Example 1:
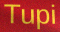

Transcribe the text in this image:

Tupi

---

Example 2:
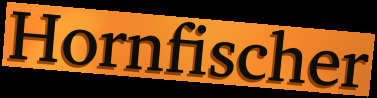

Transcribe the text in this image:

Hornfischer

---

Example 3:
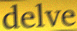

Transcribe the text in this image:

delve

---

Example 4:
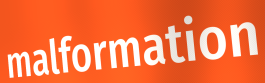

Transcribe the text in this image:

malformation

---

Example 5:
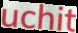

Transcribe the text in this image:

uchit